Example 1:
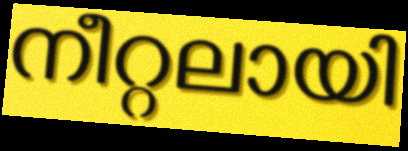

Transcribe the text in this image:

നീറ്റലായി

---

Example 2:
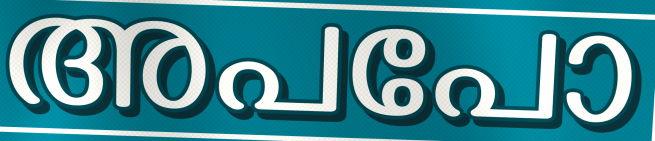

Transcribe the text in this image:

അപപോ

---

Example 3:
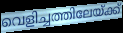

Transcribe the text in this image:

വെളിച്ചത്തിലേയ്ക്ക്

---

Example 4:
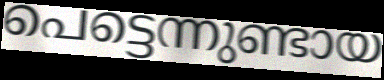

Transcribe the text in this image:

പെട്ടെന്നുണ്ടായ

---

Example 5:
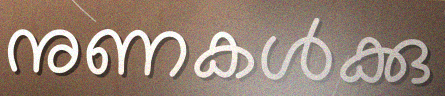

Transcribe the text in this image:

നുണകൾക്കു